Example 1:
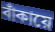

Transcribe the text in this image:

বাঁকায়ে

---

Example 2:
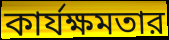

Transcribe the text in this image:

কার্যক্ষমতার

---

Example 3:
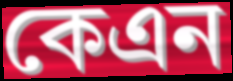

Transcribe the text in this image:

কেএন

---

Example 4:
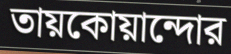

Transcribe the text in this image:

তায়কোয়ান্দোর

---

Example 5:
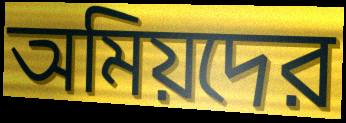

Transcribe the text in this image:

অমিয়দের